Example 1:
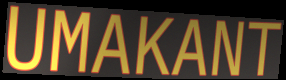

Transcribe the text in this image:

UMAKANT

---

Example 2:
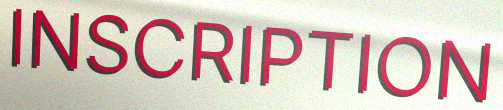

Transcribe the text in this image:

INSCRIPTION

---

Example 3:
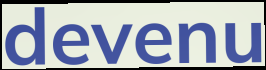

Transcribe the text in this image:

devenu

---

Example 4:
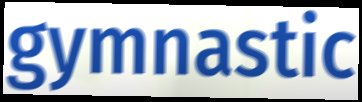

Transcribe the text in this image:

gymnastic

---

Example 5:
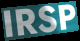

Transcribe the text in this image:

IRSP